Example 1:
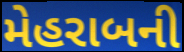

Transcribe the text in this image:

મેહરાબની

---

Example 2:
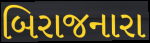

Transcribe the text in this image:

બિરાજનારા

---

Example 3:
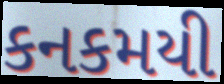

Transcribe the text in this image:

કનકમયી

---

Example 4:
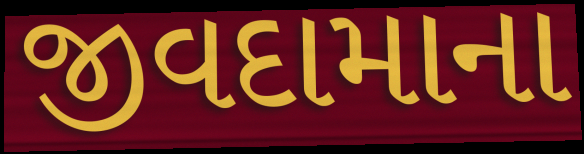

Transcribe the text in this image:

જીવદામાના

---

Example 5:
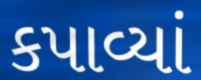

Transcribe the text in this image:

કપાવ્યાં